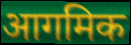
आगमिक